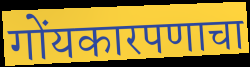
गोंयकारपणाचा